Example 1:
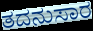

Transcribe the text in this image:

ತದನುಸಾರ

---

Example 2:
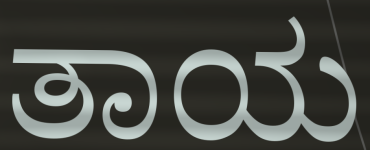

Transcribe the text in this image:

ತಾಯ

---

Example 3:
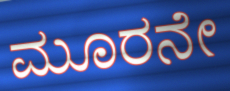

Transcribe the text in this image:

ಮೂರನೇ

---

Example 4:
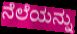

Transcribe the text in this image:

ನೆಲೆಯನ್ನು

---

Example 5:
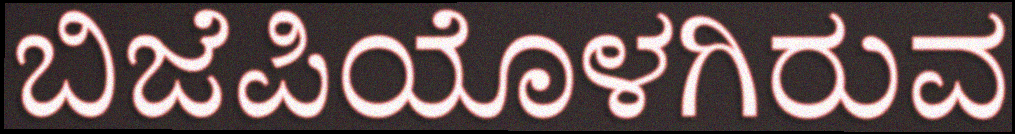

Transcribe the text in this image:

ಬಿಜೆಪಿಯೊಳಗಿರುವ